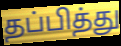
தப்பித்து